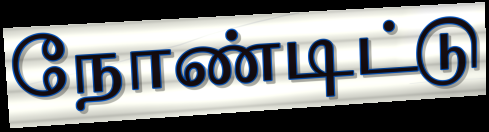
நோண்டிட்டு